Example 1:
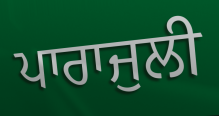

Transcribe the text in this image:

ਪਾਰਾਜੁਲੀ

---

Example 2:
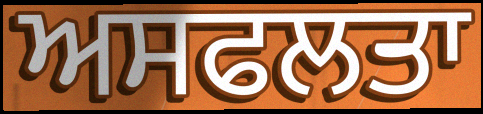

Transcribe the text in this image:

ਅਸਫਲਤਾ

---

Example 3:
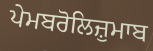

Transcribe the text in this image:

ਪੇਮਬਰੋਲਿਜ਼ੁਮਾਬ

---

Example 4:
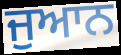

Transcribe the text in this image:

ਜੁਆਨ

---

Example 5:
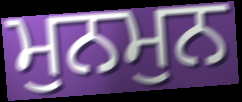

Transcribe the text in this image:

ਮੁਨਮੁਨ